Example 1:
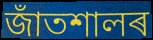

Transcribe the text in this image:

জাঁতশালৰ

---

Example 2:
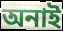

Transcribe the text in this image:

অনাই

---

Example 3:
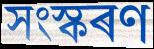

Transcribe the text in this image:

সংস্কৰণ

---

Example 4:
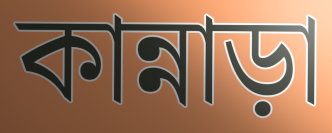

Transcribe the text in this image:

কান্নাড়া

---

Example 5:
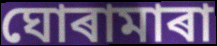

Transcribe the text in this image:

ঘোৰামাৰা